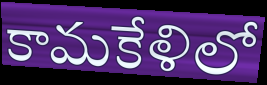
కామకేళిలో